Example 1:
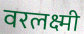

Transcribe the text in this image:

वरलक्ष्‍मी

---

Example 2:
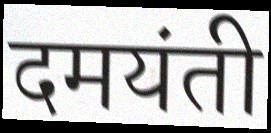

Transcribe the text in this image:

दमयंती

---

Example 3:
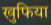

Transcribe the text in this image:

खुफिया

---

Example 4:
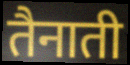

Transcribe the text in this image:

तैनाती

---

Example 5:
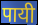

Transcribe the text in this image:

पायी